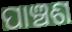
ପାଞ୍ଚଶ